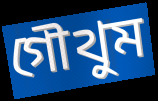
গৌথুম